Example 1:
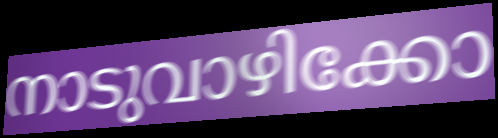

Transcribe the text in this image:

നാടുവാഴിക്കോ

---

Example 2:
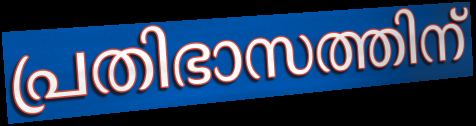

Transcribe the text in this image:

പ്രതിഭാസത്തിന്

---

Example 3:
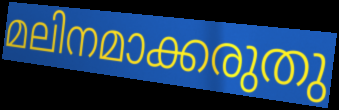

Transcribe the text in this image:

മലിനമാക്കരുതു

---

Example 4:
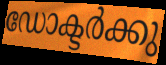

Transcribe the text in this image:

ഡോക്ടർക്കു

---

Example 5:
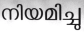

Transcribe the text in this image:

നിയമിച്ചു